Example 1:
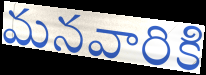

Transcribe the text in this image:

మనవారికి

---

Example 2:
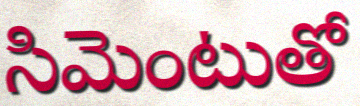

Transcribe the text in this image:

సిమెంటుతో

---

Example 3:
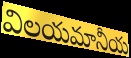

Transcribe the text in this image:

విలయమానీయ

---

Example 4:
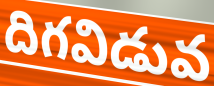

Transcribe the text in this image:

దిగవిడువ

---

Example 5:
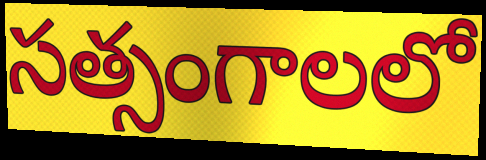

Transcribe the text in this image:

సత్సంగాలలో